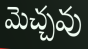
మెచ్చవు